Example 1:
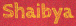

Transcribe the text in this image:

Shaibya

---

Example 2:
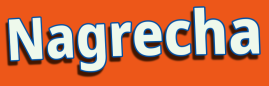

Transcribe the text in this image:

Nagrecha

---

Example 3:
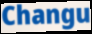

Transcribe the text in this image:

Changu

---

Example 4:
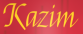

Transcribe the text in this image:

Kazim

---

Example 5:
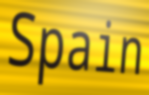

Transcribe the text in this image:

Spain